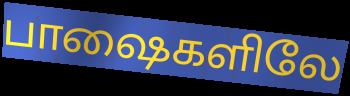
பாஷைகளிலே